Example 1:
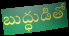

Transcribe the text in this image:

బుద్ధుడితో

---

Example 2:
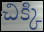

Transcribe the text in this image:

చిక్కి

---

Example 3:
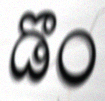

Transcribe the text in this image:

డొం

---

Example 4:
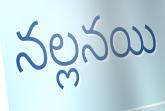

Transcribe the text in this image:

నల్లనయి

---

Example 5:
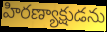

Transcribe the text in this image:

హిరణ్యాక్షుడను